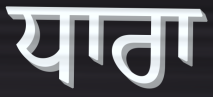
ਧਾਰਾ